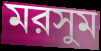
মরসুম